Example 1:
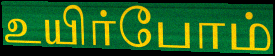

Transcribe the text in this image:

உயிர்போம்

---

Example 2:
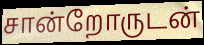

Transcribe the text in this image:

சான்றோருடன்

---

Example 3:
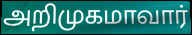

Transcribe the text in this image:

அறிமுகமாவார்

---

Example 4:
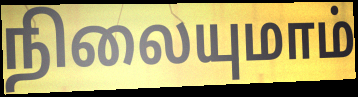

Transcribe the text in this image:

நிலையுமாம்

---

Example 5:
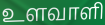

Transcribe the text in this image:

உளவாளி